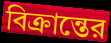
বিক্রান্তের